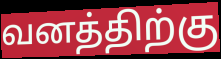
வனத்திற்கு